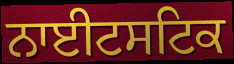
ਨਾਈਟਸਟਿਕ